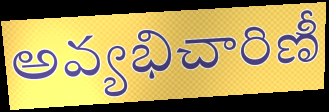
అవ్యభిచారిణీ